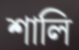
শালি